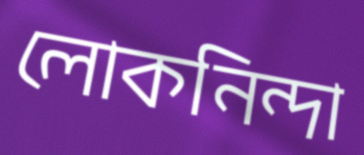
লোকনিন্দা